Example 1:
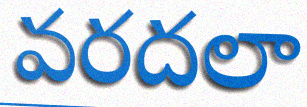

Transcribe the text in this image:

వరదలా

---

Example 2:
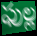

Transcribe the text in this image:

ఫుల్ల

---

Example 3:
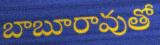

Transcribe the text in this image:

బాబూరావుతో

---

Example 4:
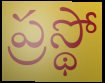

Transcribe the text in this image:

ప్రస్థో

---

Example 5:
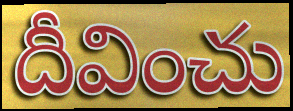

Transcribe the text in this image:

దీవించు